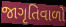
જાગૃતિવાળો